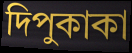
দিপুকাকা